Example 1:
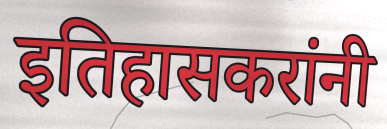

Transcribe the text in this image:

इतिहासकरांनी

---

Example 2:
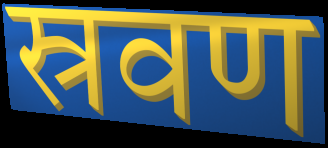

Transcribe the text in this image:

स्रवण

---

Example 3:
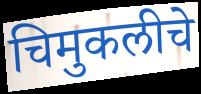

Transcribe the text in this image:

चिमुकलीचे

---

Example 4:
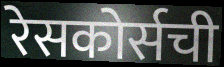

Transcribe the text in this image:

रेसकोर्सची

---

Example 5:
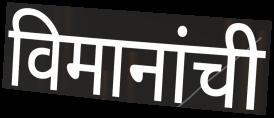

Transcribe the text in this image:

विमानांची